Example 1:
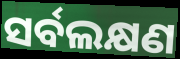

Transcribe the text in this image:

ସର୍ବଲକ୍ଷଣ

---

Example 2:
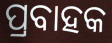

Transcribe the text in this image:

ପ୍ରବାହକ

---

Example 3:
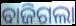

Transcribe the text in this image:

ବାଜିଗଲା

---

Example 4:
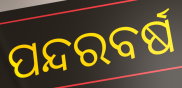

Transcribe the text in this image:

ପନ୍ଦରବର୍ଷ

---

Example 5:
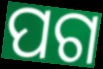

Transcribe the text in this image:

ପଗ